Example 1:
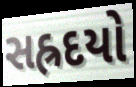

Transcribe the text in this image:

સહ્રદયો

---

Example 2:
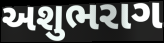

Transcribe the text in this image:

અશુભરાગ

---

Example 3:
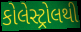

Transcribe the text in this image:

કોલેસ્ટ્રોલથી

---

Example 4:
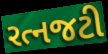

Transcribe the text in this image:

રત્નજટી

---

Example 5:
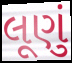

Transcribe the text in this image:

લૂણું